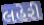
લહેરી